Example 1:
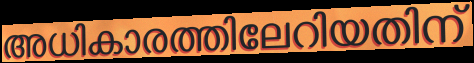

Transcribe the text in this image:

അധികാരത്തിലേറിയതിന്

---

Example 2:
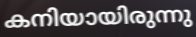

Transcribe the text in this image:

കനിയായിരുന്നു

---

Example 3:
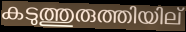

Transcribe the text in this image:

കടുത്തുരുത്തിയില്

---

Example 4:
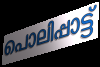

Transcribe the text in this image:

പൊലിപ്പാട്ട്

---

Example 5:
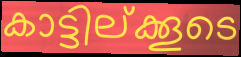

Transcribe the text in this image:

കാട്ടില്ക്കൂടെ